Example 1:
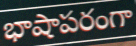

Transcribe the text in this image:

భాషాపరంగా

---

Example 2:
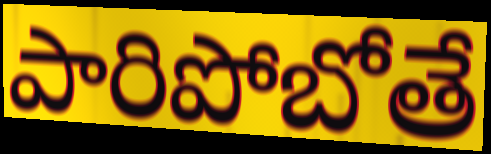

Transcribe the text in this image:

పారిపోబోతే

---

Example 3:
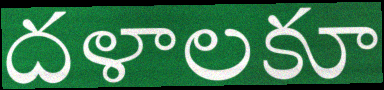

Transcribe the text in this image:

దళాలకూ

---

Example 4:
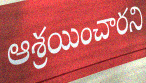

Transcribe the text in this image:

ఆశ్రయించారని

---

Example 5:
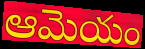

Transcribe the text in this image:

ఆమెయం